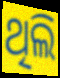
ଥିଲି